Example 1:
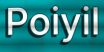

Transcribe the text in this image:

Poiyil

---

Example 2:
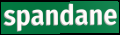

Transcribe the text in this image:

spandane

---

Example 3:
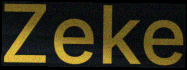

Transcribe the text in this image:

Zeke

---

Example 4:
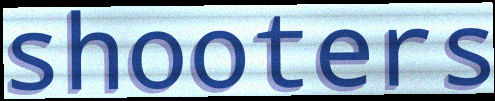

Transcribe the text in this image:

shooters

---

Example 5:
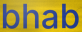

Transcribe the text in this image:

bhab